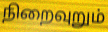
நிறைவுறும்